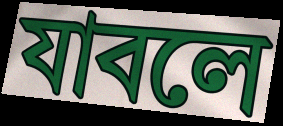
যাবলে